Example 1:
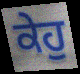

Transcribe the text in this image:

ਕੇਹੁ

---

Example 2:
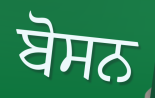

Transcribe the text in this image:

ਬੋਸਨ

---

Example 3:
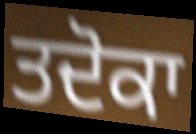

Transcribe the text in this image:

ਤਦੋਕਾ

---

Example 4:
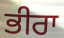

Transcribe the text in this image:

ਭੀਰਾ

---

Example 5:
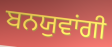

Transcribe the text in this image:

ਬਨਯੁਵਾਂਗੀ